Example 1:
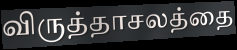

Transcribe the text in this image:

விருத்தாசலத்தை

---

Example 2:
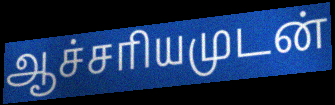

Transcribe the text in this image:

ஆச்சரியமுடன்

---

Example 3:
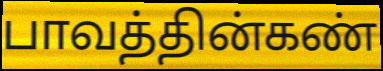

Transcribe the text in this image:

பாவத்தின்கண்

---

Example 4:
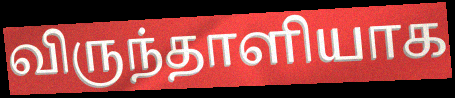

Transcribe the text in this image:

விருந்தாளியாக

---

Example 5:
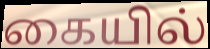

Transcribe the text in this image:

கையில்